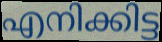
എനിക്കിട്ട